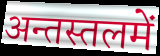
अन्तस्तलमें